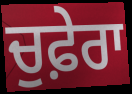
ਚੁਫ਼ੇਰਾ